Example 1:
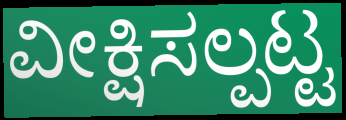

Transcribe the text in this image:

ವೀಕ್ಷಿಸಲ್ಪಟ್ಟ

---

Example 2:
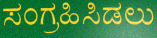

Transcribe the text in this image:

ಸಂಗ್ರಹಿಸಿಡಲು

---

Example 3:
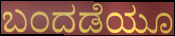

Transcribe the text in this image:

ಬಂದಡೆಯೂ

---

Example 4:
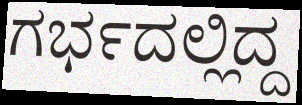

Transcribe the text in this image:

ಗರ್ಭದಲ್ಲಿದ್ದ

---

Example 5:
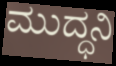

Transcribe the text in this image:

ಮುದ್ಧನಿ